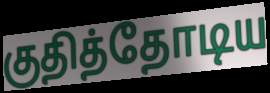
குதித்தோடிய